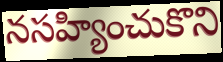
నసహ్యించుకొని